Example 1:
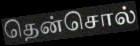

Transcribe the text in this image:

தென்சொல்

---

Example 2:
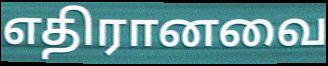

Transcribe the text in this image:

எதிரானவை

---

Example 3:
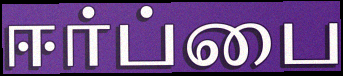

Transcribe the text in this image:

ஈர்ப்பை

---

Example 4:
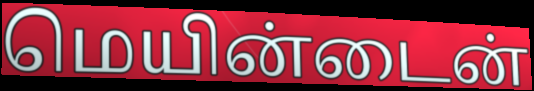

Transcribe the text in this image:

மெயின்டைன்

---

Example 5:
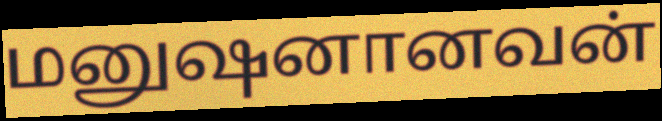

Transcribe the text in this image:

மனுஷனானவன்